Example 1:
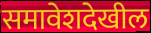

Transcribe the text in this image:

समावेशदेखील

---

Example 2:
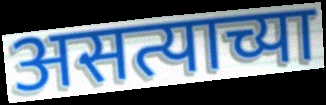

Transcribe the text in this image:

असत्याच्या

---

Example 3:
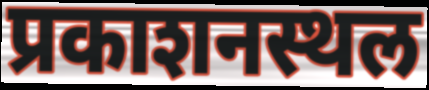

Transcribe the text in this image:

प्रकाशनस्थल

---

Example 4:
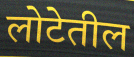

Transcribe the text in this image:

लोटेतील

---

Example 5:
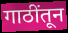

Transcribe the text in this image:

गाठींतून